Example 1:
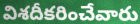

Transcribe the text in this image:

విశదీకరించేవారు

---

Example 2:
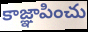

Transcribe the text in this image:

కాజ్ఞాపించు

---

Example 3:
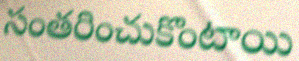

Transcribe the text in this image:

సంతరించుకొంటాయి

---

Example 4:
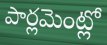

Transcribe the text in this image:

పార్లమెంట్లో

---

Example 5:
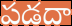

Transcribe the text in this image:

పడదా